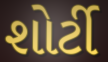
શોર્ટી